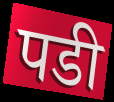
पडी